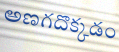
అణగదొక్కడం